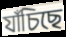
যাঁচিছে